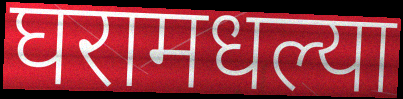
घरामधल्या